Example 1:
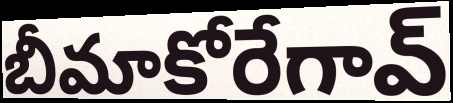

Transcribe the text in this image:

బీమాకోరేగావ్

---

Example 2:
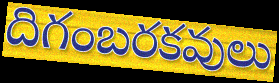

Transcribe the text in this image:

దిగంబరకవులు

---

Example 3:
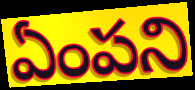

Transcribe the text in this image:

ఏంపని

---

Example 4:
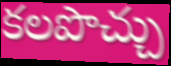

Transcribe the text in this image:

కలపొచ్చు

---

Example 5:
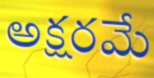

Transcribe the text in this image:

అక్షరమే